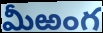
మీఱంగ